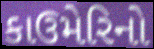
કાઉમેરિનો